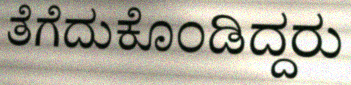
ತೆಗೆದುಕೊಂಡಿದ್ದರು